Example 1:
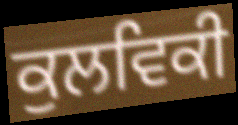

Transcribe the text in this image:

ਕੁਲਵਿਕੀ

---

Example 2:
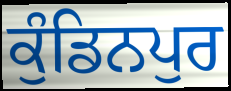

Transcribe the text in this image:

ਕੁੰਡਿਨਪੁਰ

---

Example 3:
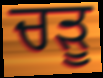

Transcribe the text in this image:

ਚੜੂ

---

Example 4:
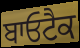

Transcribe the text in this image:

ਬਾਓਟੈਕ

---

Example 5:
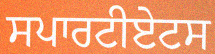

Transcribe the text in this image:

ਸਪਾਰਟੀਏਟਸ